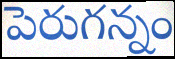
పెరుగన్నం